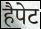
हैपेट